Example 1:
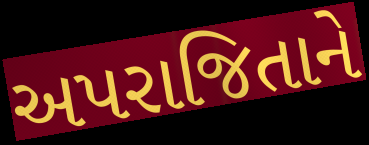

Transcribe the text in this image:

અપરાજિતાને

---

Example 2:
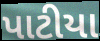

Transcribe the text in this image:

પાટીયા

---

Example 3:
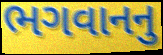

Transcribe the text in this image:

ભગવાનનુ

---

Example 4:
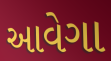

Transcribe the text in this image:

આવેગા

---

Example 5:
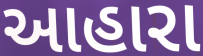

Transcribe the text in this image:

આહારા